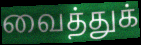
வைத்துக்